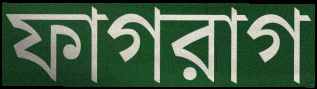
ফাগরাগ